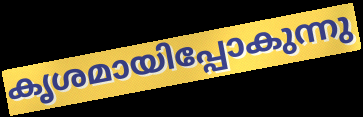
കൃശമായിപ്പോകുന്നു